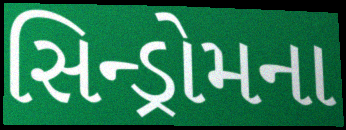
સિન્ડ્રોમના